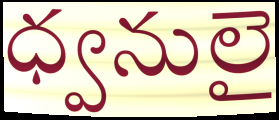
ధ్వనులై